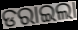
ଡରାଇଲା